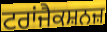
ਟਰਾਂਜੈਕਸ਼ਨਜ਼